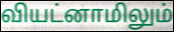
வியட்னாமிலும்